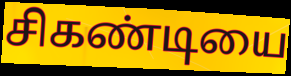
சிகண்டியை